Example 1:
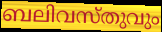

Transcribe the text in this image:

ബലിവസ്തുവും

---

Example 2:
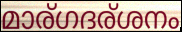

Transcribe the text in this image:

മാര്ഗദര്ശനം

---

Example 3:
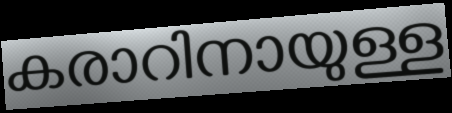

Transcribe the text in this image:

കരാറിനായുള്ള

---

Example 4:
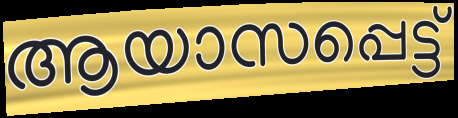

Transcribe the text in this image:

ആയാസപ്പെട്ട്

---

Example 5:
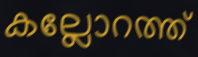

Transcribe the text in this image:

കല്ലോറത്ത്